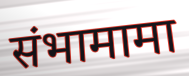
संभामामा